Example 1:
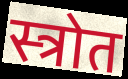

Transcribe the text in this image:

स्त्रोत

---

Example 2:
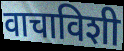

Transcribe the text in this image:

वाचाविशी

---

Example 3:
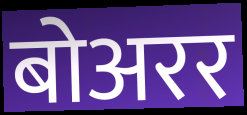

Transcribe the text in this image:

बोअरर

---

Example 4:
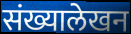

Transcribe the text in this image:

संख्यालेखन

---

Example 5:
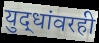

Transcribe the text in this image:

युद्धांवरही